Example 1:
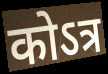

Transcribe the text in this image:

कोऽत्र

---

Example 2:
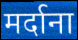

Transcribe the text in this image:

मर्दाना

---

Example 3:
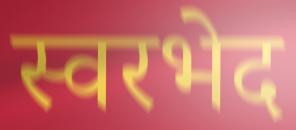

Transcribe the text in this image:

स्वरभेद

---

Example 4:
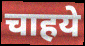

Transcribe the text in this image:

चाहये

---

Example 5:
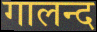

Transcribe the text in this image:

गालन्द